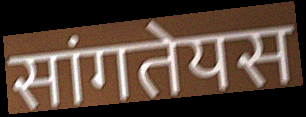
सांगतेयस